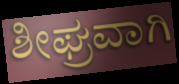
ಶೀಘ್ರವಾಗಿ